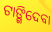
ଟାଙ୍ଗିଦେବା